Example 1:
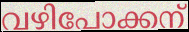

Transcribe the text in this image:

വഴിപോക്കന്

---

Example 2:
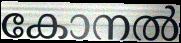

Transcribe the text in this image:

കോനൽ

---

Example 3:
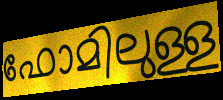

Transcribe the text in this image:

ഫോമിലുള്ള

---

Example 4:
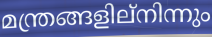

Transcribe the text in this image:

മന്ത്രങ്ങളില്നിന്നും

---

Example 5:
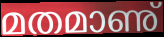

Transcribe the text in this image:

മതമാണു്